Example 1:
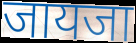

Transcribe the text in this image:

जायजा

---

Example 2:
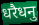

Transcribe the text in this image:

धरैधनु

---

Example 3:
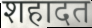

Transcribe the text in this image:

शहादत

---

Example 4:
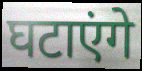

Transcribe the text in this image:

घटाएंगे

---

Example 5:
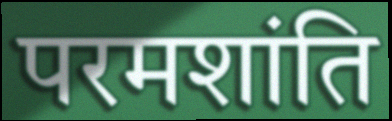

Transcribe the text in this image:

परमशांति